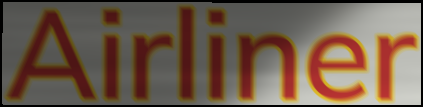
Airliner